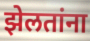
झेलतांना